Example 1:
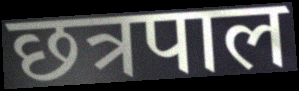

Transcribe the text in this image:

छत्रपाल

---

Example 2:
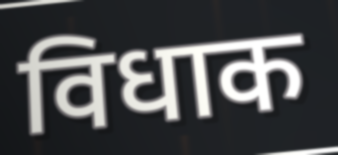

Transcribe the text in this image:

विधाक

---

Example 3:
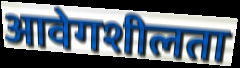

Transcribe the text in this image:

आवेगशीलता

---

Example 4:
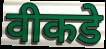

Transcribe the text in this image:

वीकडे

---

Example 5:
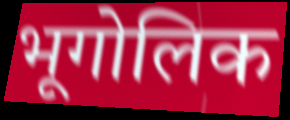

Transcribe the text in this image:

भूगोलिक